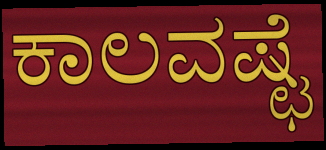
ಕಾಲವಷ್ಟೆ